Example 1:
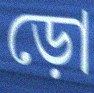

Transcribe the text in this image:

ড়ো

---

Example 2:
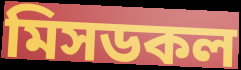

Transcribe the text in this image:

মিসডকল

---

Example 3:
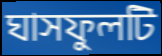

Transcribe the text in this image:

ঘাসফুলটি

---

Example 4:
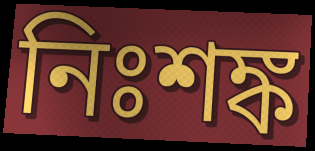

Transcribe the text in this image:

নিঃশঙ্ক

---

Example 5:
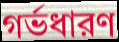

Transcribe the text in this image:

গর্ভধারণ